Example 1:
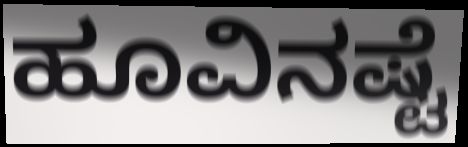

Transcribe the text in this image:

ಹೂವಿನಷ್ಟೆ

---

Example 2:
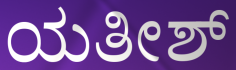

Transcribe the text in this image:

ಯತೀಶ್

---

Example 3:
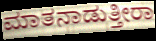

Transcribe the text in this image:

ಮಾತನಾಡುತ್ತೀರಾ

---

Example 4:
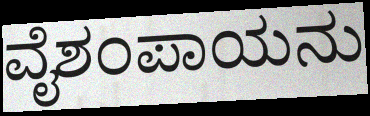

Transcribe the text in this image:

ವೈಶಂಪಾಯನು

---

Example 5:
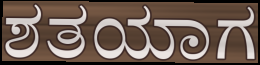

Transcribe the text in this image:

ಶತಯಾಗ